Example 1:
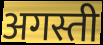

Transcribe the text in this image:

अगस्ती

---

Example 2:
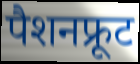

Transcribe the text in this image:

पैशनफ्रूट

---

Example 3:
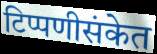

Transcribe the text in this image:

टिप्पणीसंकेत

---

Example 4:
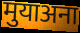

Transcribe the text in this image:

मुयाअना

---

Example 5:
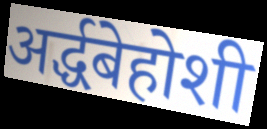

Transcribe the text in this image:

अर्द्धबेहोशी